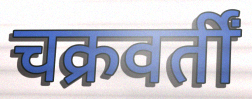
चक्रवर्तीं